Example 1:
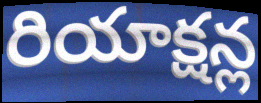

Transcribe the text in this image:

రియాక్షన్ల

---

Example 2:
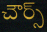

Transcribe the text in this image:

చౌర్స్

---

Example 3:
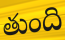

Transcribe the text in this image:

తుంది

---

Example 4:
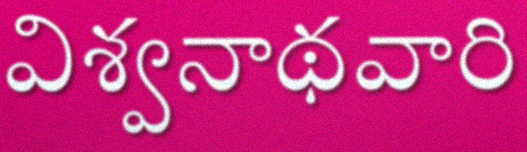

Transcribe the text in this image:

విశ్వనాథవారి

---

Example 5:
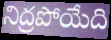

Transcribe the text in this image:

నిద్రపోయేది